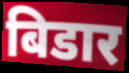
बिडार